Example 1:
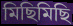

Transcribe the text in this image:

মিছিমিছি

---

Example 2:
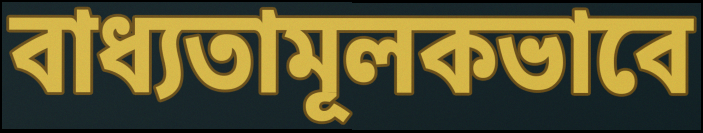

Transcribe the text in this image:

বাধ্যতামূলকভাবে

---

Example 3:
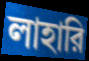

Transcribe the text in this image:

লাহারি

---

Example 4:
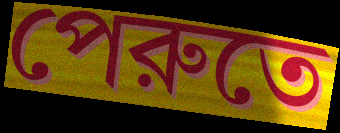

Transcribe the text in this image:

পেরুতে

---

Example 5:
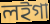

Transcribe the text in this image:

লইগা